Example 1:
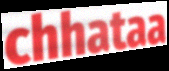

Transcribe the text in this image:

chhataa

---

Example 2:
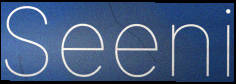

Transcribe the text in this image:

Seeni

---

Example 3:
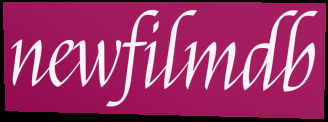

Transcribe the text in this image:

newfilmdb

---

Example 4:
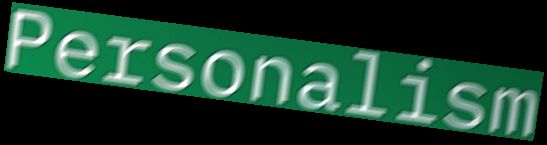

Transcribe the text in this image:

Personalism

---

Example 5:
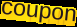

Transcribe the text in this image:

coupon